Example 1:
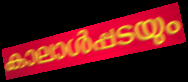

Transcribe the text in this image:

കാലാൾപ്പടയും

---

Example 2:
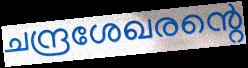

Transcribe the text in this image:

ചന്ദ്രശേഖരന്റെ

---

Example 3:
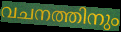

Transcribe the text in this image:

വചനത്തിനും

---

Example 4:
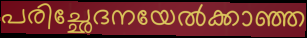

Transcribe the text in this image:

പരിച്ഛേദനയേൽക്കാഞ്ഞ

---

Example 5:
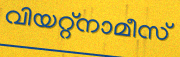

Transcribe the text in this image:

വിയറ്റ്നാമീസ്